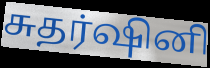
சுதர்ஷினி